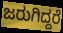
ಜರುಗಿದ್ದರೆ